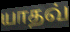
யாதவ்